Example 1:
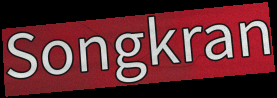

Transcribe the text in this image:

Songkran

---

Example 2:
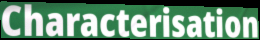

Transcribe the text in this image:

Characterisation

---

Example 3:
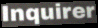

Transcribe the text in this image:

Inquirer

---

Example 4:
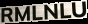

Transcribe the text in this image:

RMLNLU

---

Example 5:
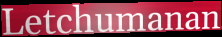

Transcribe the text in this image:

Letchumanan